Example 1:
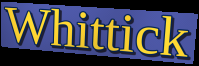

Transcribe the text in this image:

Whittick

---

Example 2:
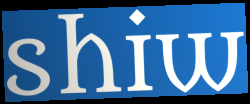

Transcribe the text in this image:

shiw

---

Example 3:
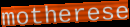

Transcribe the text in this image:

motherese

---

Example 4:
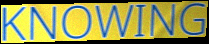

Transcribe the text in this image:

KNOWING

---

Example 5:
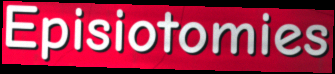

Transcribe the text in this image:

Episiotomies